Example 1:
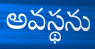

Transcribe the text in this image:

అవస్థను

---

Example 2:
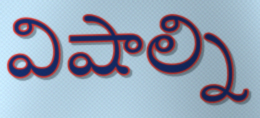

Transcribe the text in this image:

విషాల్ని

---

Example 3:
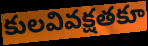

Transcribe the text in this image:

కులవివక్షతకూ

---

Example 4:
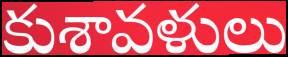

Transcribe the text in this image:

కుశావళులు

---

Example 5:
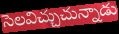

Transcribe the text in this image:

సెలవిచ్చుచున్నాడు